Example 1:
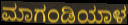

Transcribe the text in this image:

ಮಾಗಂಡಿಯಾಳ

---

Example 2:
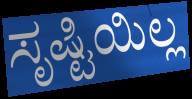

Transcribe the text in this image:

ಸೃಷ್ಟಿಯಿಲ್ಲ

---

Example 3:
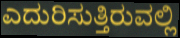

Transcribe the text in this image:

ಎದುರಿಸುತ್ತಿರುವಲ್ಲಿ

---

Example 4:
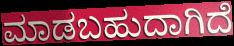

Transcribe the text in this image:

ಮಾಡಬಹುದಾಗಿದೆ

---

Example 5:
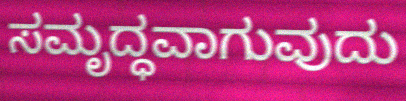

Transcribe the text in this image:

ಸಮೃದ್ಧವಾಗುವುದು